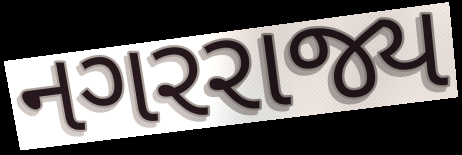
નગરરાજ્ય